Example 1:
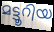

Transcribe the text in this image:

മട്ടൂറിയ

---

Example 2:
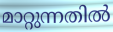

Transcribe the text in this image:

മാറ്റുന്നതിൽ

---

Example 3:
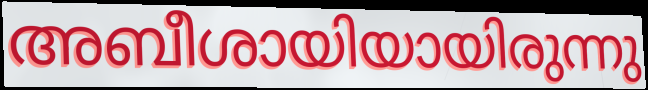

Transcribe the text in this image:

അബീശായിയായിരുന്നു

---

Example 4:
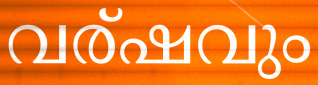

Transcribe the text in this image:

വര്ഷവും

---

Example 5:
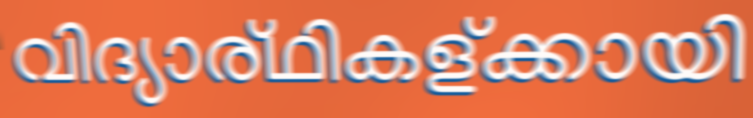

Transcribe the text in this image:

വിദ്യാര്ഥികള്ക്കായി